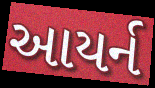
આયર્ન